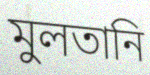
মুলতানি